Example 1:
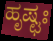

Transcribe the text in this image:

ಹೃಷ್ಟಃ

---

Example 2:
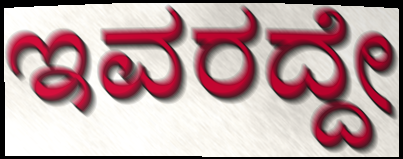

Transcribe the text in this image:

ಇವರದ್ದೇ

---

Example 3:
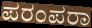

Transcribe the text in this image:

ಪರಂಪರಾ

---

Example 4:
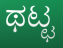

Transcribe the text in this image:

ಥಟ್ಟ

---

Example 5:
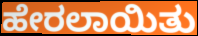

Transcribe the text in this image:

ಹೇರಲಾಯಿತು